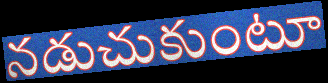
నడుచుకుంటూ